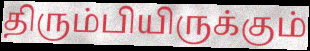
திரும்பியிருக்கும்